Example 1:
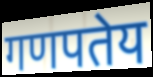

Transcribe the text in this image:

गणपतेय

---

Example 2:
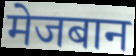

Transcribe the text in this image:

मेजबान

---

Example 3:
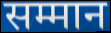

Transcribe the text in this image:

सम्मान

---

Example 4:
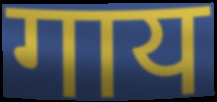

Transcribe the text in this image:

गाय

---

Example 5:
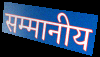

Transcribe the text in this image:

सम्मानीय